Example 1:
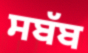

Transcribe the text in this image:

ਸਬੱਬ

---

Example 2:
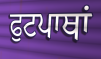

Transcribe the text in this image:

ਫੁਟਪਾਥਾਂ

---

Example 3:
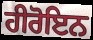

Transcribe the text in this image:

ਹੀਰੋਇਨ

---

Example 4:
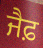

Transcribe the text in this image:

ਜੈਫ਼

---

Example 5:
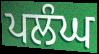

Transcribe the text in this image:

ਪਲੰਘ